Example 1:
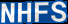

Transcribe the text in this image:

NHFS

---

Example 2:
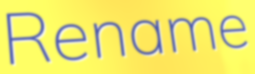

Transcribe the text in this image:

Rename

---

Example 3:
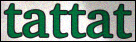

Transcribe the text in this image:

tattat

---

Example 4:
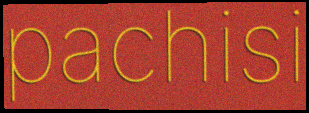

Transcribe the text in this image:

pachisi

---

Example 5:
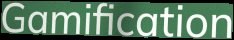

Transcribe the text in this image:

Gamification